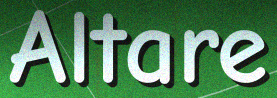
Altare